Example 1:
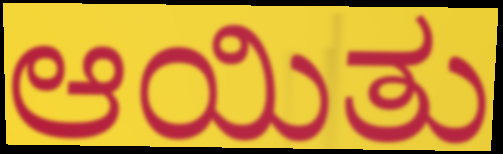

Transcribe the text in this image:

ಆಯಿತು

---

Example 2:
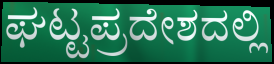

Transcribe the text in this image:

ಘಟ್ಟಪ್ರದೇಶದಲ್ಲಿ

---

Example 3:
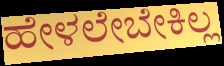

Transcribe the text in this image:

ಹೇಳಲೇಬೇಕಿಲ್ಲ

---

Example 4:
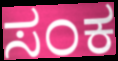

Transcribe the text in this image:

ಸಂಕ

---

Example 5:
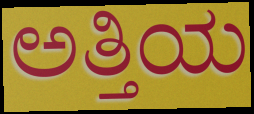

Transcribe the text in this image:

ಅತ್ತಿಯ